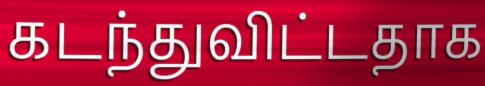
கடந்துவிட்டதாக